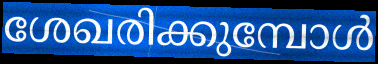
ശേഖരിക്കുമ്പോൾ